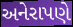
અનેરાપણે